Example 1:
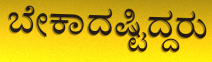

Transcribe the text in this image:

ಬೇಕಾದಷ್ಟಿದ್ದರು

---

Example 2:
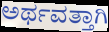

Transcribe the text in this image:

ಅರ್ಥವತ್ತಾಗಿ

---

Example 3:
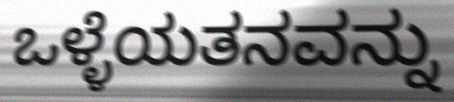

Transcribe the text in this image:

ಒಳ್ಳೆಯತನವನ್ನು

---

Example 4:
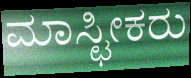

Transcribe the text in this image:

ಮಾಸ್ಟೀಕರು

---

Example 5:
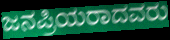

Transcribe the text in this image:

ಜನಪ್ರಿಯರಾದವರು